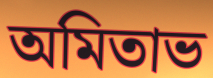
অমিতাভ